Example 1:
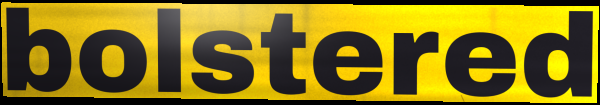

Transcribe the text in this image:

bolstered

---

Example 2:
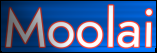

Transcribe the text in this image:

Moolai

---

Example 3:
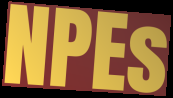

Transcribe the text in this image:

NPEs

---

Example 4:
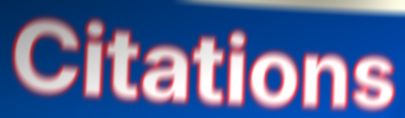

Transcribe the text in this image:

Citations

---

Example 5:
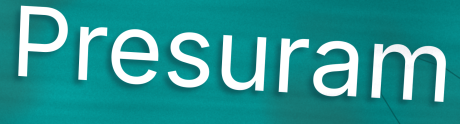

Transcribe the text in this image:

Presuram